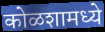
कोळशामध्ये